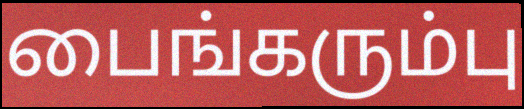
பைங்கரும்பு